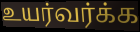
உயர்வர்க்க